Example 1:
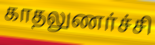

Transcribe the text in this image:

காதலுணர்ச்சி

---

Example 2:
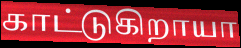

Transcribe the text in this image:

காட்டுகிறாயா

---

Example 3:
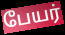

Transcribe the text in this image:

பேயர்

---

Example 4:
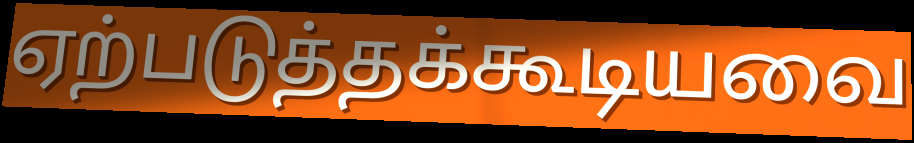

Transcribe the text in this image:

ஏற்படுத்தக்கூடியவை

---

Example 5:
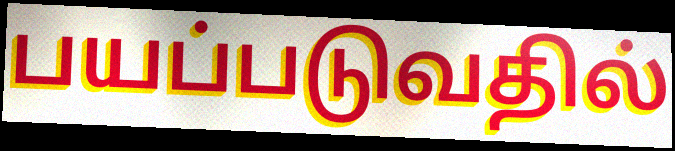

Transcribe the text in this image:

பயப்படுவதில்